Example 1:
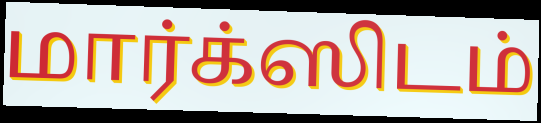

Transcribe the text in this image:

மார்க்ஸிடம்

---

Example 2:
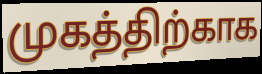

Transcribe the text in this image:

முகத்திற்காக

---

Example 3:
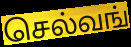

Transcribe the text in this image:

செல்வங்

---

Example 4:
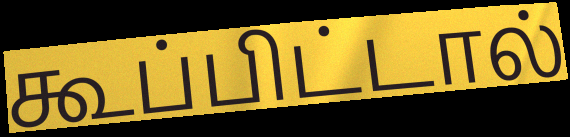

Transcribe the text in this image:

கூப்பிட்டால்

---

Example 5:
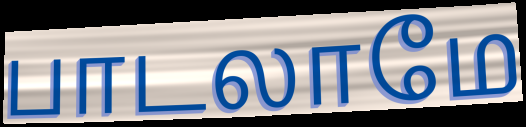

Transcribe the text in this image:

பாடலாமே